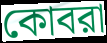
কোবরা